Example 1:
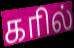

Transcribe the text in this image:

கரில்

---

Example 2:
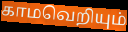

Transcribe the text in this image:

காமவெறியும்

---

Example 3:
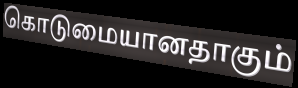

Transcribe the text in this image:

கொடுமையானதாகும்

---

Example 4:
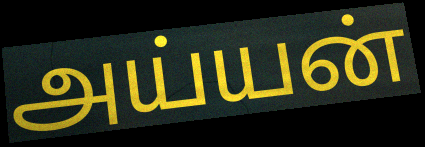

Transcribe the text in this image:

அய்யன்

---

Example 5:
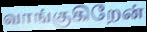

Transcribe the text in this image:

வாங்குகிறேன்